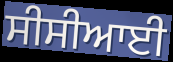
ਸੀਸੀਆਈ